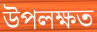
উপলক্ষত